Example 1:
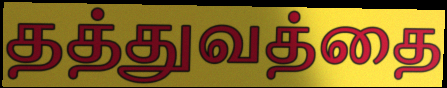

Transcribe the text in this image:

தத்துவத்தை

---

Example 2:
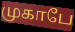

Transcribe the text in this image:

முகாபே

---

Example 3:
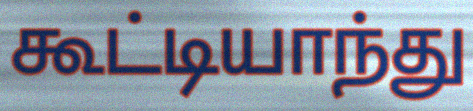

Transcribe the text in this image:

கூட்டியாந்து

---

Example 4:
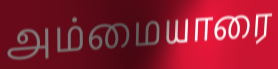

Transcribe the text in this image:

அம்மையாரை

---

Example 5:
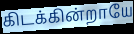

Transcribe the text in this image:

கிடக்கின்றாயே